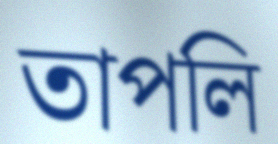
তাপলি